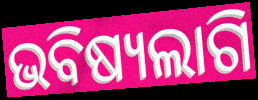
ଭବିଷ୍ୟଲାଗି